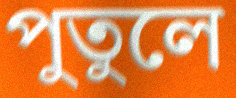
পুতুলে